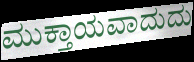
ಮುಕ್ತಾಯವಾದುದು